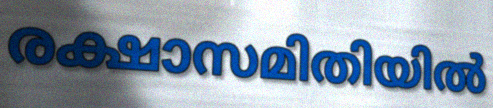
രക്ഷാസമിതിയിൽ